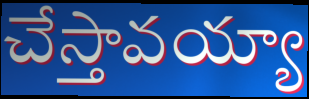
చేస్తావయ్యా